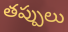
తప్పులు